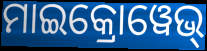
ମାଇକ୍ରୋୱେଭ୍